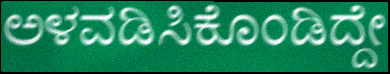
ಅಳವಡಿಸಿಕೊಂಡಿದ್ದೇ